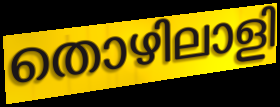
തൊഴിലാളി